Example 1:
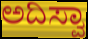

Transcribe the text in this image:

ಅದಿಸ್ವಾ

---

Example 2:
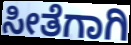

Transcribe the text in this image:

ಸೀತೆಗಾಗಿ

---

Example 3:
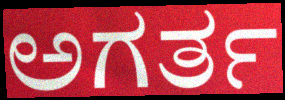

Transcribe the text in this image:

ಅಗರ್ತ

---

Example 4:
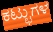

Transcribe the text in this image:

ಕಟ್ಟುಗಳ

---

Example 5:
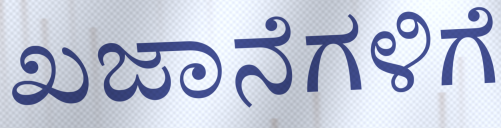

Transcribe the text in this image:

ಖಜಾನೆಗಳಿಗೆ